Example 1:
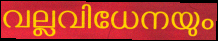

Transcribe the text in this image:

വല്ലവിധേനയും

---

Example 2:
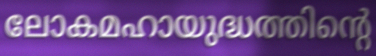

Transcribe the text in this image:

ലോകമഹായുദ്ധത്തിന്റെ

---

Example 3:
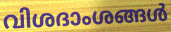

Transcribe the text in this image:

വിശദാംശങ്ങൾ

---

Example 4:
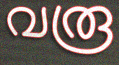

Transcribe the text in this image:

വരൂ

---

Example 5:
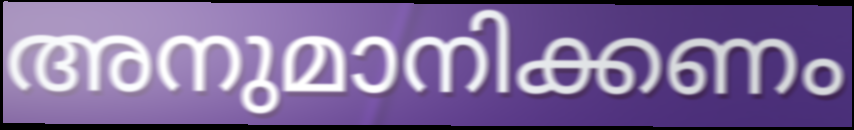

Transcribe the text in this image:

അനുമാനിക്കണം